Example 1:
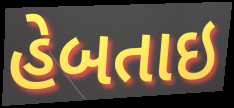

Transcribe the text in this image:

હેબતાઇ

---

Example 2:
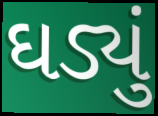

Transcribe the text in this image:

ઘડ્યું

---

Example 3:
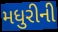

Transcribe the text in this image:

મધુરીની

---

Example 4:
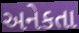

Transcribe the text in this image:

અનેકતા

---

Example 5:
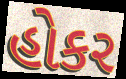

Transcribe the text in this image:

હોકર